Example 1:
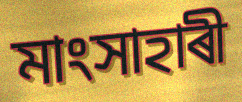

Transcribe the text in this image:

মাংসাহাৰী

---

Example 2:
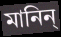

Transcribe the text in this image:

মানিন্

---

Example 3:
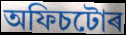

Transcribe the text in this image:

অফিচটোৰ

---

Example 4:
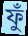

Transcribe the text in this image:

ফুঁ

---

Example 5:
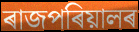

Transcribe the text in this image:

ৰাজপৰিয়ালৰ